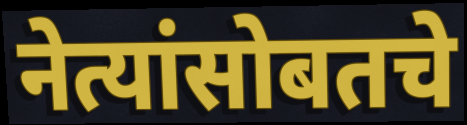
नेत्यांसोबतचे